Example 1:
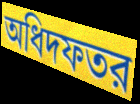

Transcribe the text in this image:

অধিদফতর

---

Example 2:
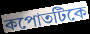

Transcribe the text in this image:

কপোতটিকে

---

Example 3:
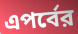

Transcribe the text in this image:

এপর্বের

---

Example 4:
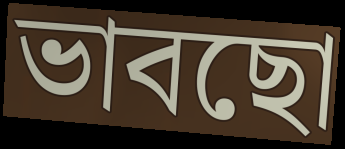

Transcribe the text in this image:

ভাবছো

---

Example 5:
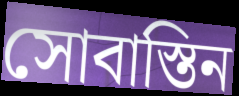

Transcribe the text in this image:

সোবাস্তিন